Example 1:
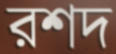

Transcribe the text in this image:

রশদ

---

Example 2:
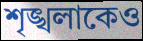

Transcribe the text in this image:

শৃঙ্খলাকেও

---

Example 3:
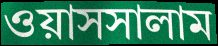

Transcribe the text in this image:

ওয়াসসালাম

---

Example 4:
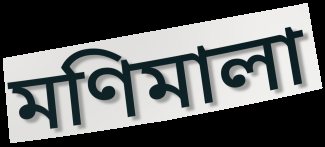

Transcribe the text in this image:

মণিমালা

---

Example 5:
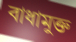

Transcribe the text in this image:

বাধামুক্ত